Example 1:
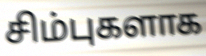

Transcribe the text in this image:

சிம்புகளாக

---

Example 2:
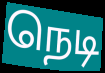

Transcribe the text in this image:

நெடி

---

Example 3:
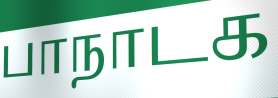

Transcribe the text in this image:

பாநாடக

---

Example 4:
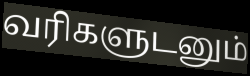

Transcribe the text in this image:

வரிகளுடனும்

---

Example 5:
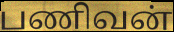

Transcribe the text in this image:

பணிவன்